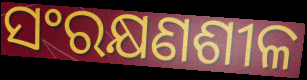
ସଂରକ୍ଷଣଶୀଳ